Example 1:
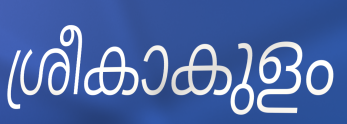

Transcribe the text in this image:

ശ്രീകാകുളം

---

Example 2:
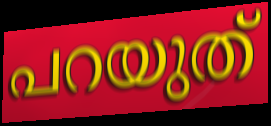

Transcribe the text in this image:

പറയുത്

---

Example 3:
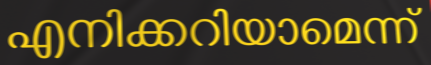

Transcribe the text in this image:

എനിക്കറിയാമെന്ന്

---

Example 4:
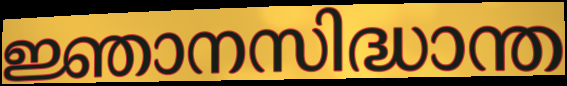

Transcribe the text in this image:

ജ്ഞാനസിദ്ധാന്ത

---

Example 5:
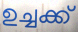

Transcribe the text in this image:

ഉച്ചക്ക്